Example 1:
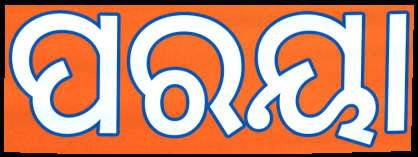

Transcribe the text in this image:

ପରୟା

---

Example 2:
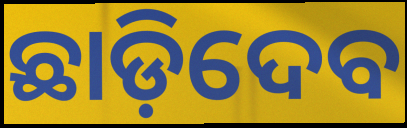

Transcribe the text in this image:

ଛାଡ଼ିଦେବ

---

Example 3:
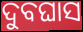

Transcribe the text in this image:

ଦୁବଘାସ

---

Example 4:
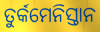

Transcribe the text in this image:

ତୁର୍କମେନିସ୍ତାନ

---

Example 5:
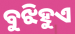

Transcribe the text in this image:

ବୁଝିହୁଏ